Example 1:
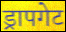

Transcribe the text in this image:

ड्रापगेट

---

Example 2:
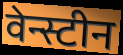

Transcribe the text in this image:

वेन्स्टीन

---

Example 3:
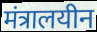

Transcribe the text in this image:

मंत्रालयीन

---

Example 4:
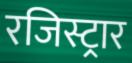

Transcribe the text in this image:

रजिस्ट्रार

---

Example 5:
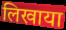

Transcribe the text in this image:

लिखाया